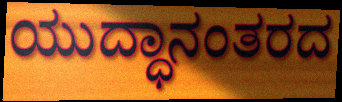
ಯುದ್ಧಾನಂತರದ